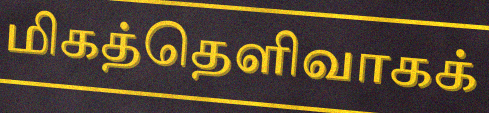
மிகத்தெளிவாகக்